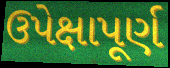
ઉપેક્ષાપૂર્ણ